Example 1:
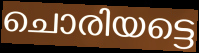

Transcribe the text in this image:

ചൊരിയട്ടെ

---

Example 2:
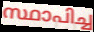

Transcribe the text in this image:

സ്ഥാപിച്ച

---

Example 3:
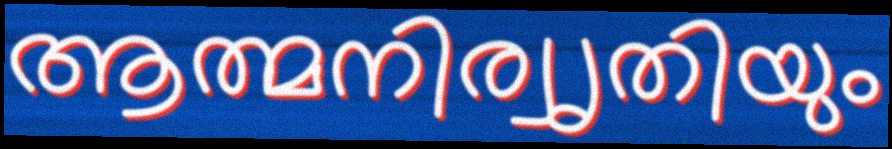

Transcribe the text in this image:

ആത്മനിര്വൃതിയും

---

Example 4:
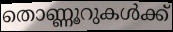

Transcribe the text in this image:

തൊണ്ണൂറുകൾക്ക്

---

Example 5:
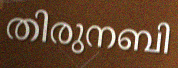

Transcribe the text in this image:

തിരുനബി